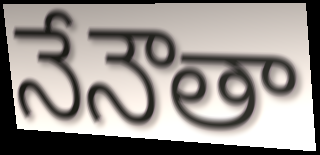
నేనౌతా